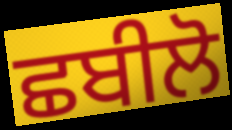
ਛਬੀਲੋ